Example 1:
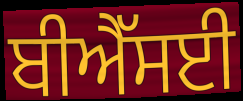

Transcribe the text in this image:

ਬੀਐੱਸਈ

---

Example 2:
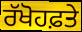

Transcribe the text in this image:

ਰੱਖੋਹਫ਼ਤੇ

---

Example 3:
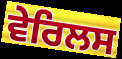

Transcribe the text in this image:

ਵੇਰਿਲਸ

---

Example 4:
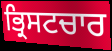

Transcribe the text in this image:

ਭ੍ਰਿਸਟਚਾਰ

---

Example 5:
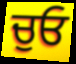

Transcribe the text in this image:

ਚੁਓ